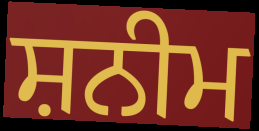
ਸ਼ਨੀਮ